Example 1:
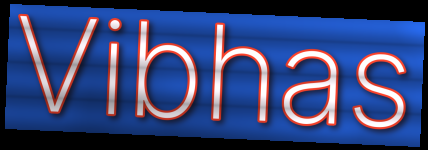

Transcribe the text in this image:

Vibhas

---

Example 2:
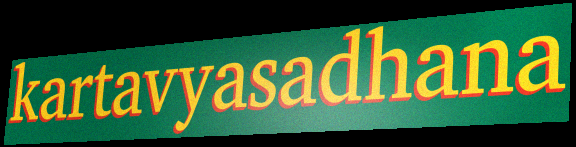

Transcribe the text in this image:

kartavyasadhana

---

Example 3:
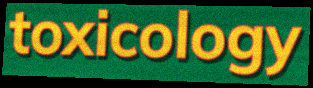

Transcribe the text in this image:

toxicology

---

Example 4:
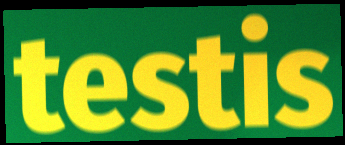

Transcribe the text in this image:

testis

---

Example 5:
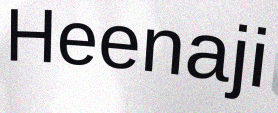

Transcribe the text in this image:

Heenaji